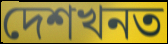
দেশখনত